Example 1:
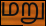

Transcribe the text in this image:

மறு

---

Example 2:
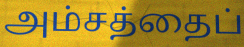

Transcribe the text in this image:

அம்சத்தைப்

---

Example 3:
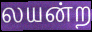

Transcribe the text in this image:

லயன்ற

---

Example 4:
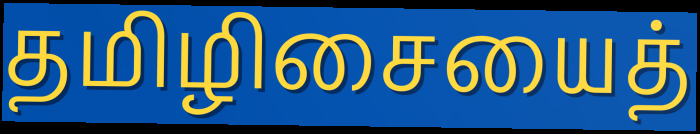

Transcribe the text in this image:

தமிழிசையைத்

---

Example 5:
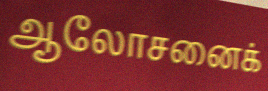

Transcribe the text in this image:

ஆலோசனைக்